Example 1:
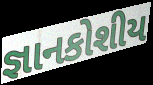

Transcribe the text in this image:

જ્ઞાનકોશીય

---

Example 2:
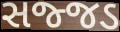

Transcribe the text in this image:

સજ્જડ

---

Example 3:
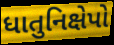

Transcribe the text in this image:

ધાતુનિક્ષેપો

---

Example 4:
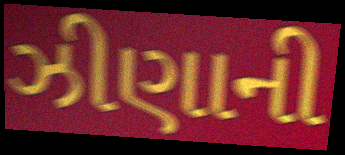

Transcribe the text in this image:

ઝીણાની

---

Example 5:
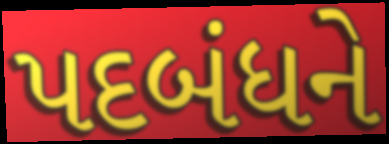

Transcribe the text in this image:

પદબંધને